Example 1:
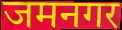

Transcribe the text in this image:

जमनगर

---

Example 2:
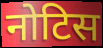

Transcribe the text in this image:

नोटिस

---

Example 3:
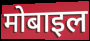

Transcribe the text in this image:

मोबाइल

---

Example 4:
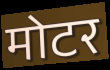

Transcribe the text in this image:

मोटर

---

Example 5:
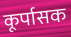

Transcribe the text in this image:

कूर्पासक